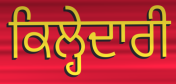
ਕਿਲ੍ਹੇਦਾਰੀ